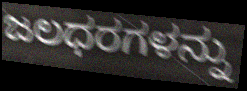
ಜಲಧರಗಳನ್ನು